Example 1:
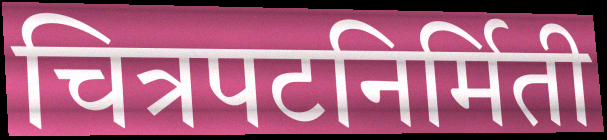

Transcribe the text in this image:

चित्रपटनिर्मिती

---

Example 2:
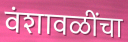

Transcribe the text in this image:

वंशावळींचा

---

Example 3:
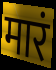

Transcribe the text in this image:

मारं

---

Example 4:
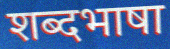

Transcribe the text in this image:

शब्दभाषा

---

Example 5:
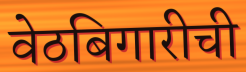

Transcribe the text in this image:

वेठबिगारीची